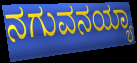
ನಗುವನಯ್ಯಾ